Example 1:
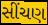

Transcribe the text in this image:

સીંચણ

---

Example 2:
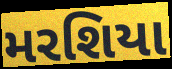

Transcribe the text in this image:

મરશિયા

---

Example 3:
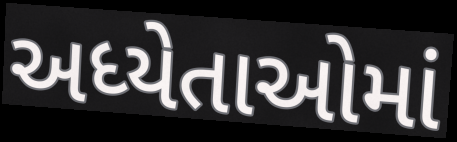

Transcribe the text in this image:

અધ્યેતાઓમાં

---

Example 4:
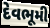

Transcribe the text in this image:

દેવભૂમી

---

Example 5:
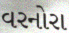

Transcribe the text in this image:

વરનોરા